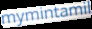
mymintamil